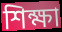
শিক্ষা